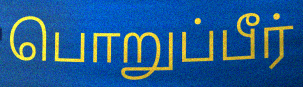
பொறுப்பீர்